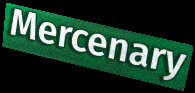
Mercenary